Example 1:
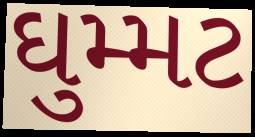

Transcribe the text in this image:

ઘુમ્મટ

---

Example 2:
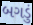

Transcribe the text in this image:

બગડું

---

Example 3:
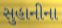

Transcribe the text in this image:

સુહાનીના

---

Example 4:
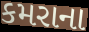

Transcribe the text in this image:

કમરાના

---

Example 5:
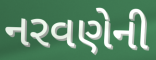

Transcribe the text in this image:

નરવણેની